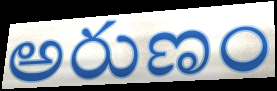
అరుణం